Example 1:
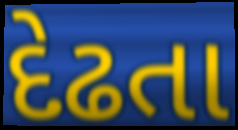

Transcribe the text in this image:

દેઢતા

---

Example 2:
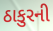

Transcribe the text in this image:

ઠાકુરની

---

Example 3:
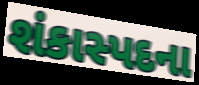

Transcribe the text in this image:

શંકાસ્પદના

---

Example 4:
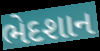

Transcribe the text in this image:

ભેદશાન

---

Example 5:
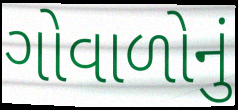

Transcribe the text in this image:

ગોવાળોનું